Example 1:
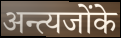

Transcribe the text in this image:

अन्त्यजोंके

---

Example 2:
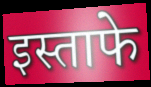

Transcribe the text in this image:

इस्ताफे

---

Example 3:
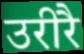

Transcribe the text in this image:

उरीरै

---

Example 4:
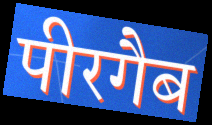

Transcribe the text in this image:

पीरगैब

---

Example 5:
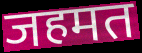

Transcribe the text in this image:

जहमत